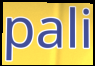
pali